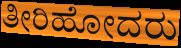
ತೀರಿಹೋದರು